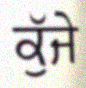
ਕੁੱਜੇ